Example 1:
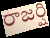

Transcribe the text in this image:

రాజర్షి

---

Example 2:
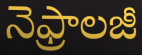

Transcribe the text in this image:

నెఫ్రాలజీ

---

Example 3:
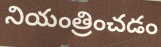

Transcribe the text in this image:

నియంత్రించడం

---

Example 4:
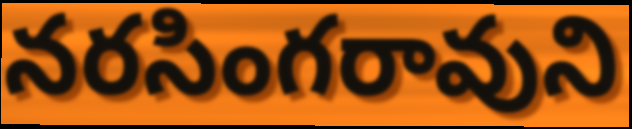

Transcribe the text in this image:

నరసింగరావుని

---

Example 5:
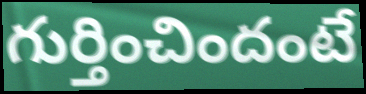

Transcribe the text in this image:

గుర్తించిందంటే